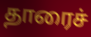
தாரைச்